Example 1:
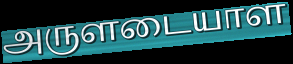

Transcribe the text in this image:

அருளடையாள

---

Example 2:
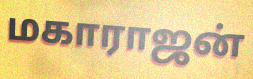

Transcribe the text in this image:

மகாராஜன்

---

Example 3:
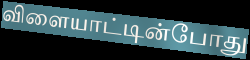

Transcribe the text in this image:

விளையாட்டின்போது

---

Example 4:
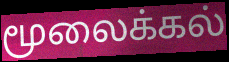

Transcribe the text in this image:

மூலைக்கல்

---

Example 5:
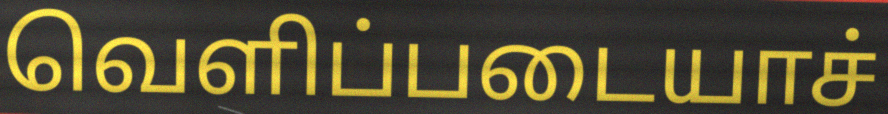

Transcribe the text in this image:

வெளிப்படையாச்